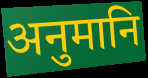
अनुमानि